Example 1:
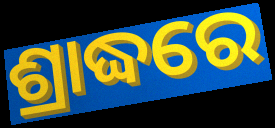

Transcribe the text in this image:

ଶ୍ରାଦ୍ଧରେ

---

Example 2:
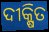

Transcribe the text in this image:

ଦୀକ୍ଷିତ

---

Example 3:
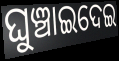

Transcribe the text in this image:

ଘୁଞ୍ଚାଇଦେଇ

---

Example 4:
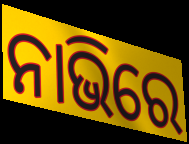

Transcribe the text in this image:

ନାଭିରେ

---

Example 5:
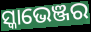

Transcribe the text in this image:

ସ୍କାଭେଞ୍ଜର